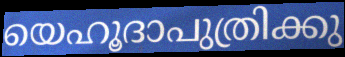
യെഹൂദാപുത്രിക്കു